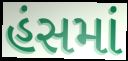
હંસમાં